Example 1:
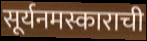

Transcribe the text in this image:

सूर्यनमस्काराची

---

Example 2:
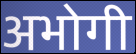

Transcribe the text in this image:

अभोगी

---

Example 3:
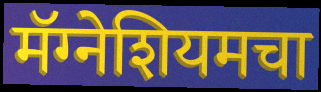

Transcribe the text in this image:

मॅग्नेशियमचा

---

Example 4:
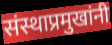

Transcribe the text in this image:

संस्थाप्रमुखांनी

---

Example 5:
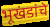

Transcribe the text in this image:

भूखंडांचे